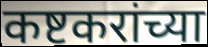
कष्टकरांच्या